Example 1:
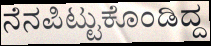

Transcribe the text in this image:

ನೆನಪಿಟ್ಟುಕೊಂಡಿದ್ದ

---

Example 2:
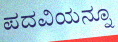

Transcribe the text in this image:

ಪದವಿಯನ್ನೂ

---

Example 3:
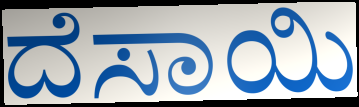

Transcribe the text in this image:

ದೆಸಾಯಿ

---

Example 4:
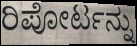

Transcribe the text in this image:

ರಿಪೋರ್ಟನ್ನು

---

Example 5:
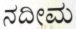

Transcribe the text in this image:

ನದೀಮ